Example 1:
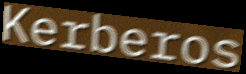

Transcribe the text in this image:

Kerberos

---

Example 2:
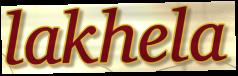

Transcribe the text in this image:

lakhela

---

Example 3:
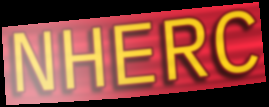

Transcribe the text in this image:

NHERC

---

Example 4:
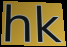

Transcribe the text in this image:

hk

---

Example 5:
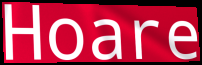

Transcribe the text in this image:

Hoare